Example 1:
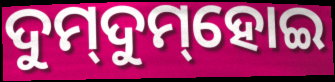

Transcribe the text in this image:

ଦୁମ୍‌ଦୁମ୍‌ହୋଇ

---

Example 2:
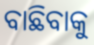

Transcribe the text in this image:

ବାଛିବାକୁ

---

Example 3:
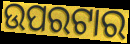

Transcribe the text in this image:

ଉପରଟାର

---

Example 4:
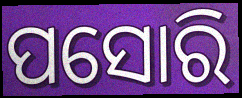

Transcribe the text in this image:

ପସୋରି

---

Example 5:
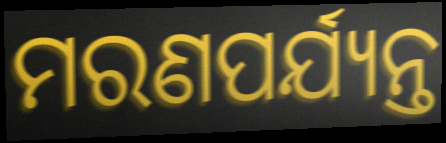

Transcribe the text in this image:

ମରଣପର୍ଯ୍ୟନ୍ତ